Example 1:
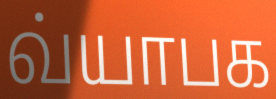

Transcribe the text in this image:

வ்யாபக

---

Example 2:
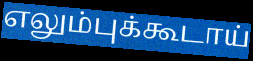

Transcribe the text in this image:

எலும்புக்கூடாய்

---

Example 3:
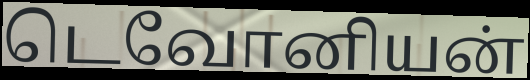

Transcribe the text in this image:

டெவோனியன்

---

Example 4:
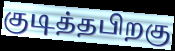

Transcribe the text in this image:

குடித்தபிறகு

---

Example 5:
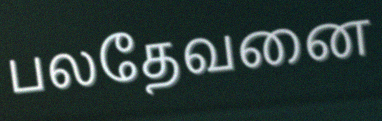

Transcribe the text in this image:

பலதேவனை